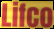
Lifco